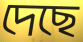
দেছে